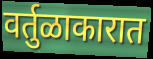
वर्तुळाकारात